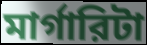
মার্গারিটা